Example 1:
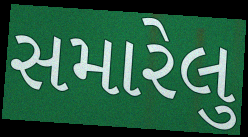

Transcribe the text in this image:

સમારેલુ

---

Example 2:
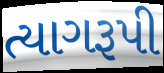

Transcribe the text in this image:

ત્યાગરૂપી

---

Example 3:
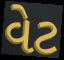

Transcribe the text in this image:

વેટ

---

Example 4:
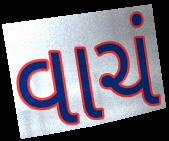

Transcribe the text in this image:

વાચં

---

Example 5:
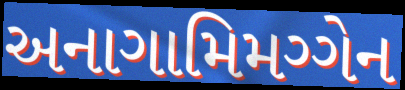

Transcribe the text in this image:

અનાગામિમગ્ગેન